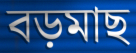
বড়মাছ